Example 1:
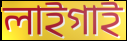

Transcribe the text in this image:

লাইগাই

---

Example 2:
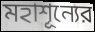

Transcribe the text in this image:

মহাশূন্যের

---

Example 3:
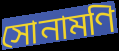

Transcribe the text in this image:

সোনামণি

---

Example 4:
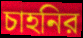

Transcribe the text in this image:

চাহনির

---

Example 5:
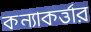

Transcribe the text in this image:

কন্যাকর্ত্তার